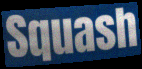
Squash